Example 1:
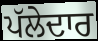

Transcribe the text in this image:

ਪੱਲੇਦਾਰ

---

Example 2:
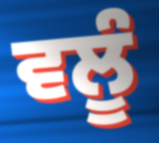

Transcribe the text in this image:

ਵਲੂੰ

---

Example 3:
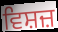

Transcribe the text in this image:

ਵਿਸ਼ਜ਼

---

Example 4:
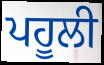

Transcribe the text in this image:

ਪਹੂਲੀ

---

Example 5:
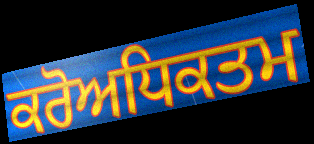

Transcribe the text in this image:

ਕਰੋਅਧਿਕਤਮ